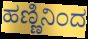
ಹಣ್ಣಿನಿಂದ